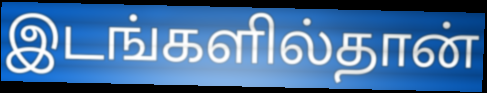
இடங்களில்தான்